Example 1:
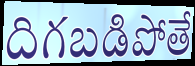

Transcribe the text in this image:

దిగబడిపోతే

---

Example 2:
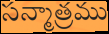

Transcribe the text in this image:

సన్మాత్రము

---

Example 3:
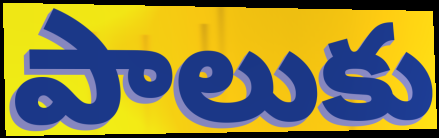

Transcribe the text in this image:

పాలుకు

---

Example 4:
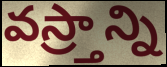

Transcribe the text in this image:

వస్ర్తాన్ని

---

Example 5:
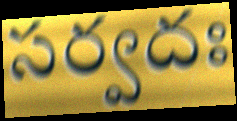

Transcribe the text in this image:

సర్వదః